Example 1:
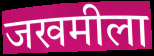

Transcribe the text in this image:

जखमीला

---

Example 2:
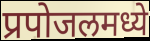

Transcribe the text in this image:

प्रपोजलमध्ये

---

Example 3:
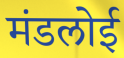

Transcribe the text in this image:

मंडलोई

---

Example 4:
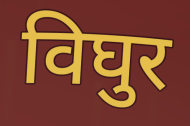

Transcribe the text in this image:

विघुर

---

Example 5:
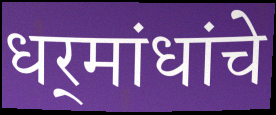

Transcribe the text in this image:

धर्मांधांचे